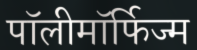
पॉलीमॉर्फिज्म